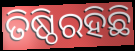
ତିଷ୍ଠିରହିଛି